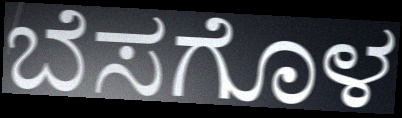
ಬೆಸಗೊಳ